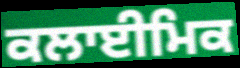
ਕਲਾਈਮਿਕ